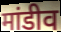
मांडीव